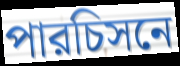
পারচিসনে